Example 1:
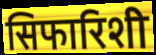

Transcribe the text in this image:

सिफारिशी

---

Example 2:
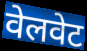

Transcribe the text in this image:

वेलवेट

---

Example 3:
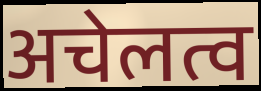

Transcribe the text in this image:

अचेलत्व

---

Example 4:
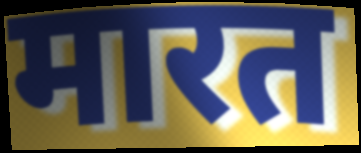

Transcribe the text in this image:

मारत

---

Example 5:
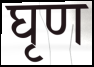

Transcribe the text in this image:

घृण